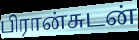
பிரான்சுடன்